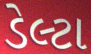
ડેલ્ટા